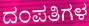
ದಂಪತಿಗಳ